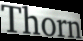
Thorn